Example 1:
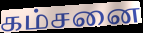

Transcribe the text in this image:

கம்சனை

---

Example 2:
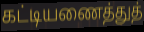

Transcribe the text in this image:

கட்டியணைத்துத்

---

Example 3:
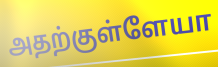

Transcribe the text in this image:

அதற்குள்ளேயா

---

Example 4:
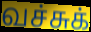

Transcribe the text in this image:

வச்சுக்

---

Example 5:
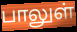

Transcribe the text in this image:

பாலுள்